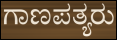
ಗಾಣಪತ್ಯರು